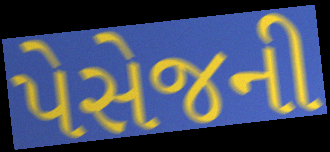
પેસેજની